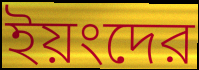
ইয়ংদের